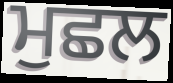
ਮੁਛਲ